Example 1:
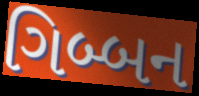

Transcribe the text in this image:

ગિબ્બન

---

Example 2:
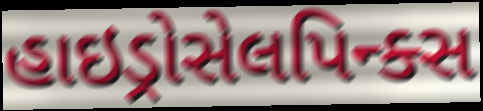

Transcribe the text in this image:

હાઇડ્રોસેલપિન્ક્સ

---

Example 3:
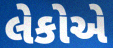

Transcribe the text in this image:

લેકોએ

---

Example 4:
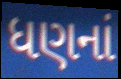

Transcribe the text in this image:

ધણનાં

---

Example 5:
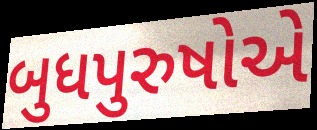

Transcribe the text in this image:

બુધપુરુષોએ